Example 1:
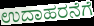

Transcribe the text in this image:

ಉದಾಹರನೆಗೆ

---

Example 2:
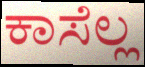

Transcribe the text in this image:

ಕಾಸೆಲ್ಲ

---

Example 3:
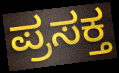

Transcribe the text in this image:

ಪ್ರಸಕ್ತ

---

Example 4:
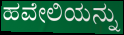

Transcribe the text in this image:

ಹವೇಲಿಯನ್ನು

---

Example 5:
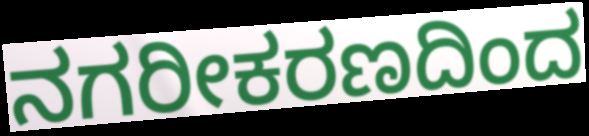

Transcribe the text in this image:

ನಗರೀಕರಣದಿಂದ